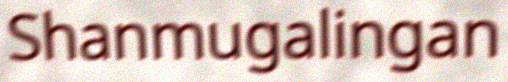
Shanmugalingan